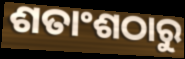
ଶତାଂଶଠାରୁ